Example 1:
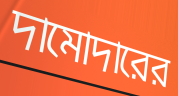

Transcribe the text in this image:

দামোদারের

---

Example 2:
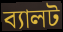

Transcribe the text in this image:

ব্যালট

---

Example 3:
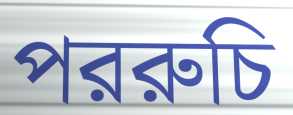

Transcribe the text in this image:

পররুচি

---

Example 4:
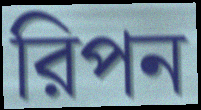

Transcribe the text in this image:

রিপন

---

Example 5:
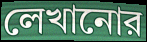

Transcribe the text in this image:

লেখানোর